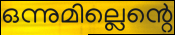
ഒന്നുമില്ലെന്റെ